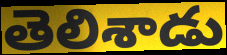
తెలిశాడు